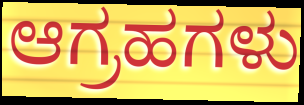
ಆಗ್ರಹಗಳು